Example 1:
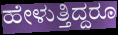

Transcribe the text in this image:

ಹೇಳುತ್ತಿದ್ದರೂ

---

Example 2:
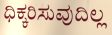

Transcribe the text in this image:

ಧಿಕ್ಕರಿಸುವುದಿಲ್ಲ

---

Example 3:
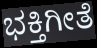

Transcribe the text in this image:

ಭಕ್ತಿಗೀತೆ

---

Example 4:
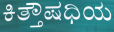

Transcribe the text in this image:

ಕಿತ್ತೌಷಧಿಯ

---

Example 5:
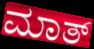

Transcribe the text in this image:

ಮಾತ್